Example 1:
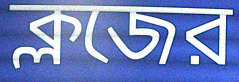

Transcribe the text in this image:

ক্লজের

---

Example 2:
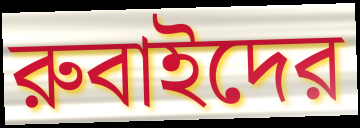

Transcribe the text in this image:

রুবাইদের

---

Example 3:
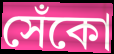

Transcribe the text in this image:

সেঁকো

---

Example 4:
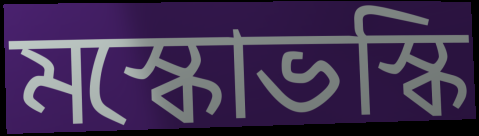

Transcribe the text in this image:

মস্কোভস্কি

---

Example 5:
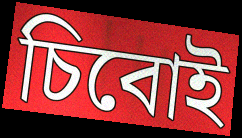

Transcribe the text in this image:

চিবোই